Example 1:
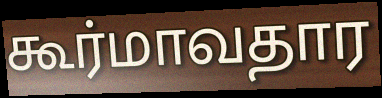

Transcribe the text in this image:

கூர்மாவதார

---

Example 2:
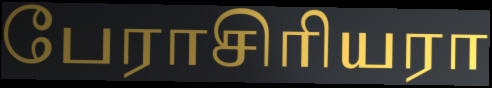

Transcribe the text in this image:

பேராசிரியரா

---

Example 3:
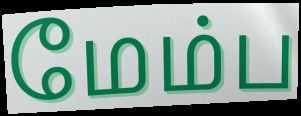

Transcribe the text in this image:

மேம்ப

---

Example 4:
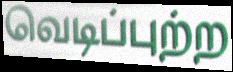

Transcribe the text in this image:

வெடிப்புற்ற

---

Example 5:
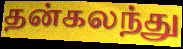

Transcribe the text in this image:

தன்கலந்து